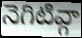
నెగిటివ్గా